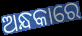
ଅନ୍ଧକାରେ